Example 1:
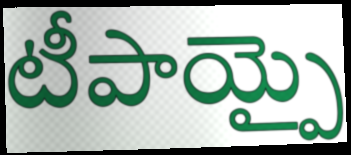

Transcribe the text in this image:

టీపాయ్పై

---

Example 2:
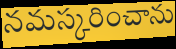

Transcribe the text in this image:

నమస్కరించాను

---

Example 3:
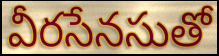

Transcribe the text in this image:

వీరసేనసుతో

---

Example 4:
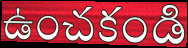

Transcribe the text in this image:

ఉంచకండి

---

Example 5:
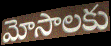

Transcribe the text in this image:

మోసాలకు